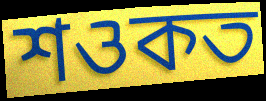
শওকত